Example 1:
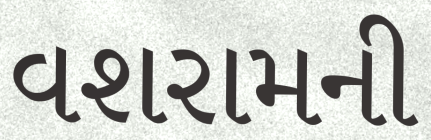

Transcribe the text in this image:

વશરામની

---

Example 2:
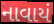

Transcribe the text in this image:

નાવાયં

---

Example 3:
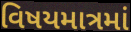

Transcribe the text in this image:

વિષયમાત્રમાં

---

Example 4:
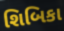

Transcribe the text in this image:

શિબિકા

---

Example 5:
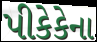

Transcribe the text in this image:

પીકેકેના